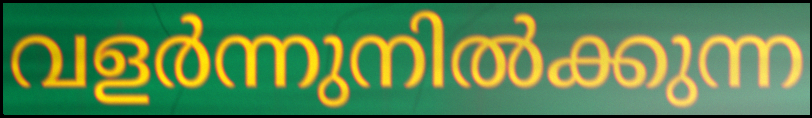
വളർന്നുനിൽക്കുന്ന